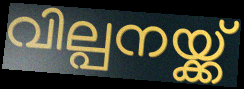
വില്പനയ്ക്ക്